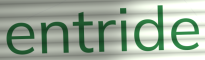
entride